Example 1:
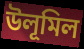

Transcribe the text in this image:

উলূমিল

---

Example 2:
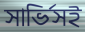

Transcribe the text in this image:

সার্ভিসই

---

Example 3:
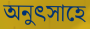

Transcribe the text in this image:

অনুৎসাহে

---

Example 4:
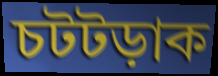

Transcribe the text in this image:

চটটড়াক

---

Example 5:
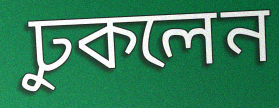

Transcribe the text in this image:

ঢুকলেন